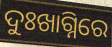
ଦୁଃଖାଗ୍ନିରେ